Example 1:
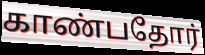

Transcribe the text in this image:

காண்பதோர்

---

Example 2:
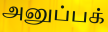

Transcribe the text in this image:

அனுப்பக்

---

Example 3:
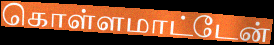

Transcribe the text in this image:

கொள்ளமாட்டேன்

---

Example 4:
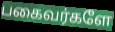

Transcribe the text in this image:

பகைவர்களே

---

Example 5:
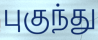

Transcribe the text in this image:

புகுந்து